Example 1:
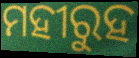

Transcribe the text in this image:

ମହୀରୁହ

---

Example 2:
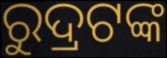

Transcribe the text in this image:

ରୁଦ୍ରଟଙ୍କ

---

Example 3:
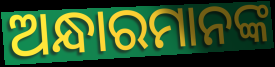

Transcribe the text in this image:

ଅନ୍ଧାରମାନଙ୍କ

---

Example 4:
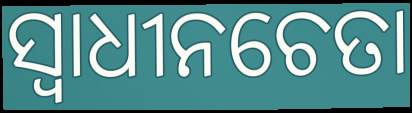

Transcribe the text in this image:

ସ୍ବାଧୀନଚେତା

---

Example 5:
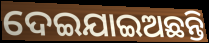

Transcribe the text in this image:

ଦେଇଯାଇଅଛନ୍ତି